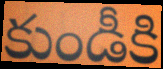
కుండీకి